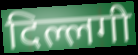
दिल्‍लगी